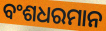
ବଂଶଧରମାନ